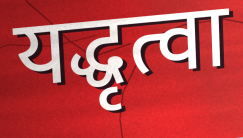
यद्धृत्वा